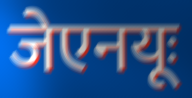
जेएनयूः